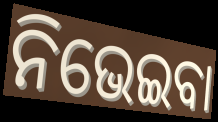
ନିଭେଇବା